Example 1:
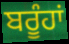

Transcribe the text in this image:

ਬਰੂੰਹਾਂ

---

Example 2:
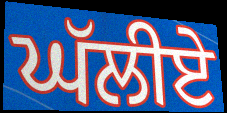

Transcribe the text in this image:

ਘੱਲੀਏ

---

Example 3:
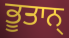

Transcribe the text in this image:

ਭੂਤਾਨ੍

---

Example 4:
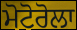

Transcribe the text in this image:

ਮੋਟੋਰੋਲਾ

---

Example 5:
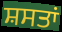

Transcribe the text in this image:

ਸ਼ਸਤਾਂ